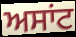
ਅਸਾਂਟ